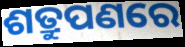
ଶତ୍ରୁପଣରେ